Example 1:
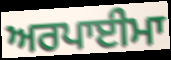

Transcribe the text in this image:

ਅਰਪਾਈਮਾ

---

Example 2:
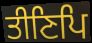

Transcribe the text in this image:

ਤੀਣਿਪਿ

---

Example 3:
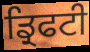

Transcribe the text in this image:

ਡ੍ਰਿਫਟੀ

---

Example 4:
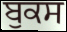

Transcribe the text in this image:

ਬੁਕਸ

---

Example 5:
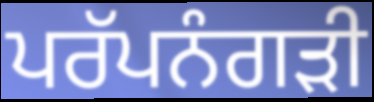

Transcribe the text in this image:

ਪਰੱਪਨੰਗੜੀ